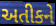
અતીકને